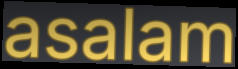
asalam